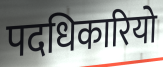
पदधिकारियो